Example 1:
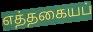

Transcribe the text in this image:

எத்தகையப்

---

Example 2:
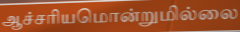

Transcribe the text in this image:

ஆச்சரியமொன்றுமில்லை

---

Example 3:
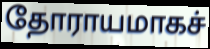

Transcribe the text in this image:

தோராயமாகச்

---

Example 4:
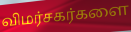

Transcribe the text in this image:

விமர்சகர்களை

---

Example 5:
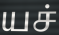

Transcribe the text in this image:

யச்